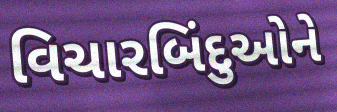
વિચારબિંદુઓને